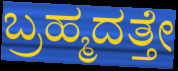
ಬ್ರಹ್ಮದತ್ತೇ